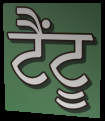
ਟੈਂਟੂ